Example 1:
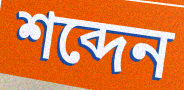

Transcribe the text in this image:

শব্দেন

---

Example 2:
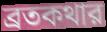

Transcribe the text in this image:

ব্রতকথার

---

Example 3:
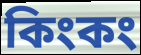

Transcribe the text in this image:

কিংকং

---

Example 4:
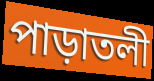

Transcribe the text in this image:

পাড়াতলী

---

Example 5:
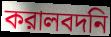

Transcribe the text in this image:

করালবদনি